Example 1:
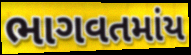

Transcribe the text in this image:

ભાગવતમાંય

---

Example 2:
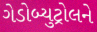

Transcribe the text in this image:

ગેડોબ્યુટ્રોલને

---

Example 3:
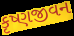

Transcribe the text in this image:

કૃષ્ણજીવન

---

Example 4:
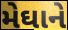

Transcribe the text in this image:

મેઘાને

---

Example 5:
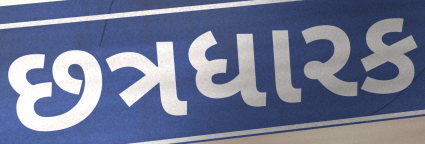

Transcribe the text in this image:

છત્રધારક